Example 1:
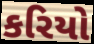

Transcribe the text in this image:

કરિયો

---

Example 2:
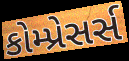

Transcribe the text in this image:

કોમ્પ્રેસર્સ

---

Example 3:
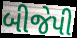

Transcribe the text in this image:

બીજેપી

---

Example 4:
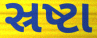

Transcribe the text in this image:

સ્રષ્ટા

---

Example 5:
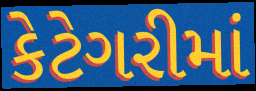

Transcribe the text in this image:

કેટેગરીમાં